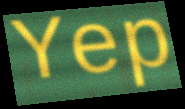
Yep